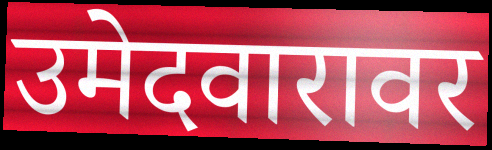
उमेदवारावर